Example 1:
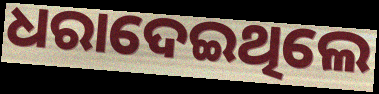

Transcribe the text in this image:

ଧରାଦେଇଥିଲେ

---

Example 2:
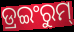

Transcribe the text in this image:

ଡ୍ରଇଂରୁମ୍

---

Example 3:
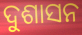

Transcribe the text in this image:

ଦୁଶାସନ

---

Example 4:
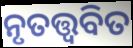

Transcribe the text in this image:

ନୃତତ୍ତ୍ୱବିତ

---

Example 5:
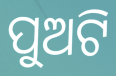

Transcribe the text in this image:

ପୁଅଟି